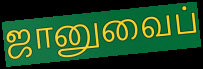
ஜானுவைப்